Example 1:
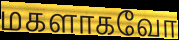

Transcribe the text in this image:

மகளாகவோ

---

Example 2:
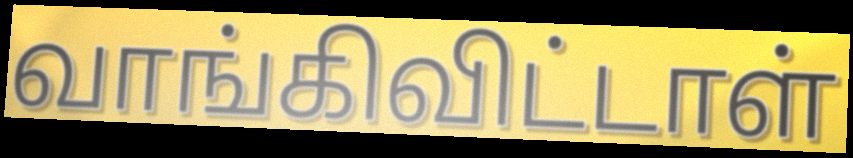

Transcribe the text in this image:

வாங்கிவிட்டாள்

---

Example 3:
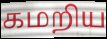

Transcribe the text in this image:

கமறிய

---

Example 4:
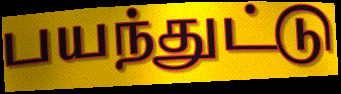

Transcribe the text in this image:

பயந்துட்டு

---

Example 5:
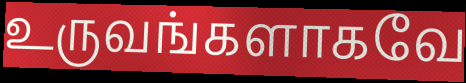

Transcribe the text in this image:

உருவங்களாகவே